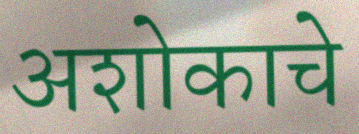
अशोकाचे